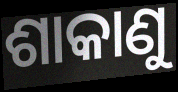
ଶାକାଣୁ